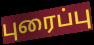
புரைப்பு